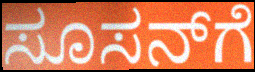
ಸೂಸನ್‌ಗೆ